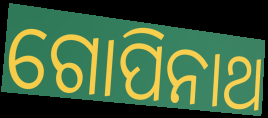
ଗୋପିନାଥ